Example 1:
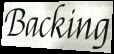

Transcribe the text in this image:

Backing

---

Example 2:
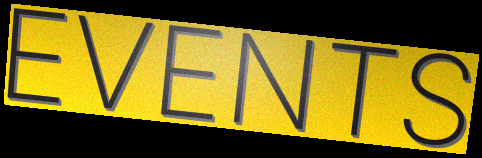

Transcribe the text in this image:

EVENTS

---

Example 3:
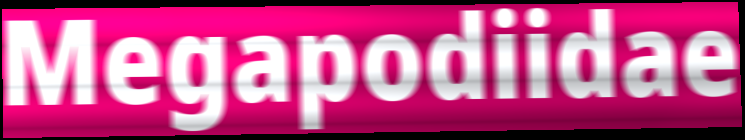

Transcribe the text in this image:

Megapodiidae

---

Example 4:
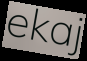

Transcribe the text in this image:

ekaj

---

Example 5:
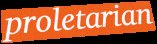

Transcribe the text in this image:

proletarian